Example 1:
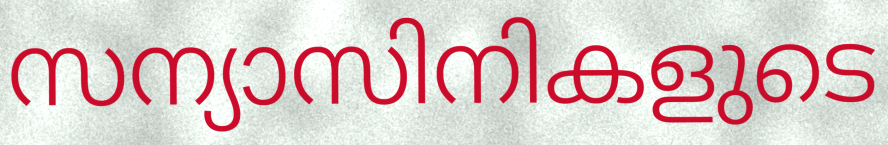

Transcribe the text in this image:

സന്യാസിനികളുടെ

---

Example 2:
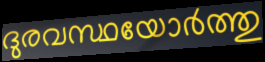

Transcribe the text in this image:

ദുരവസ്ഥയോർത്തു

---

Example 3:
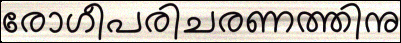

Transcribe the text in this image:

രോഗീപരിചരണത്തിനു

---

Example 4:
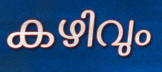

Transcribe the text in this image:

കഴിവും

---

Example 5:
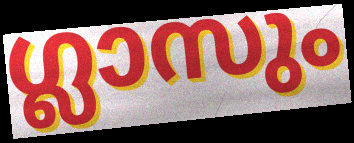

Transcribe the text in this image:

ഗ്ലാസും